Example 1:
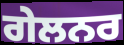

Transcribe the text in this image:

ਗੇਲਨਰ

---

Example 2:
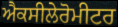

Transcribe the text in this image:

ਐਕਸੀਲੇਰੋਮੀਟਰ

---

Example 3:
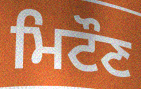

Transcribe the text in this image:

ਮਿਟੌਣ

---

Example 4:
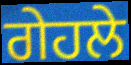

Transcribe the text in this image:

ਗੇਹਲੇ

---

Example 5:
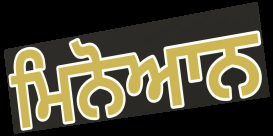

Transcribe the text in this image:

ਮਿਨੋਆਨ